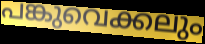
പങ്കുവെക്കലും